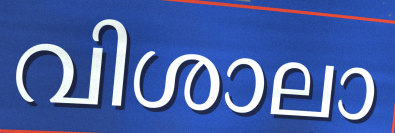
വിശാലാ